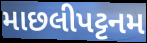
માછલીપટ્ટનમ